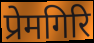
प्रेमगिरि